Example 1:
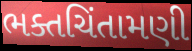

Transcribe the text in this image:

ભક્તચિંતામણી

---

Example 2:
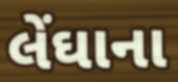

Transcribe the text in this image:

લેંઘાના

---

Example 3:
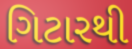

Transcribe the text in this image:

ગિટારથી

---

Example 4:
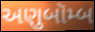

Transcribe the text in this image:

અણુબૉમ્બ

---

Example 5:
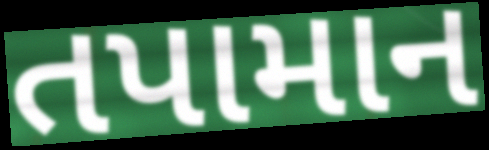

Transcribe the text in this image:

તપામાન